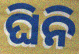
ଘିନି